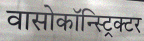
वासोकॉन्स्ट्रिक्टर